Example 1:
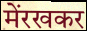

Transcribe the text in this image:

मेंरखकर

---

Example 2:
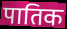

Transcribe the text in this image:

पातिक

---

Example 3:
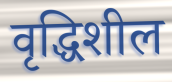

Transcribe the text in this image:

वृद्धिशील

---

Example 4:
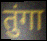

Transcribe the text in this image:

तुंगा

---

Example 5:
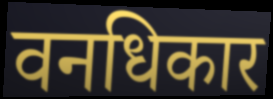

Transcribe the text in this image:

वनधिकार